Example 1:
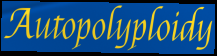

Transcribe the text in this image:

Autopolyploidy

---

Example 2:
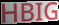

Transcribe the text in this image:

HBIG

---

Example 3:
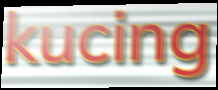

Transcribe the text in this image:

kucing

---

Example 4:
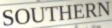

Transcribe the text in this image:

SOUTHERN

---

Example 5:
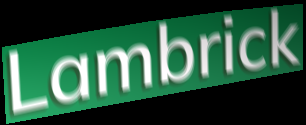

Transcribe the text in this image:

Lambrick